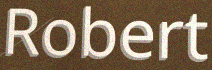
Robert